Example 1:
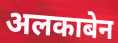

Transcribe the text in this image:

अलकाबेन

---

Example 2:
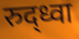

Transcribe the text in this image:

रुद्ध्वा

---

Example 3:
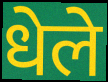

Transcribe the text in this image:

धेले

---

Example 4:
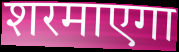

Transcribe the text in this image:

शरमाएगा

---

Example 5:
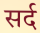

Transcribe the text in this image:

सर्द